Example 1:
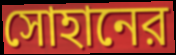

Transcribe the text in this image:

সোহানের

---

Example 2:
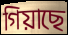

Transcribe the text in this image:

গিয়াছে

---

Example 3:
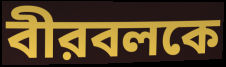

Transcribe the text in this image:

বীরবলকে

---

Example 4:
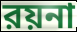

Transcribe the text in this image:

রয়না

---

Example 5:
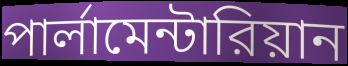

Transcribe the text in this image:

পার্লামেন্টারিয়ান